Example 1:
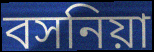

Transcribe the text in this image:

বসনিয়া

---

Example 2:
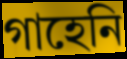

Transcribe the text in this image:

গাহেনি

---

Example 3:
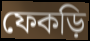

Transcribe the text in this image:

ফেকড়ি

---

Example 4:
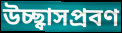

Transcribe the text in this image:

উচ্ছ্বাসপ্রবণ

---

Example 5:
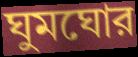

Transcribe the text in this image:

ঘুমঘোর